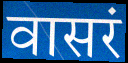
वासरं